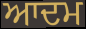
ਆਦਮ